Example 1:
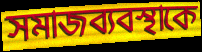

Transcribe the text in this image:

সমাজব্যবস্থাকে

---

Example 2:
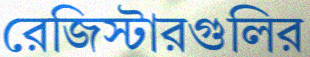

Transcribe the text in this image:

রেজিস্টারগুলির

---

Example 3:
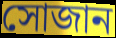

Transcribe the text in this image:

সোজান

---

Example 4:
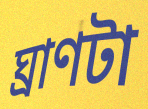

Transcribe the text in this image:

ঘ্রাণটা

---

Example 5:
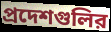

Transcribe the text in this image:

প্রদেশগুলির